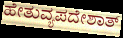
ಹೇತುವ್ಯಪದೇಶಾತ್